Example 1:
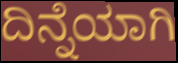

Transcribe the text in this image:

ದಿನ್ನೆಯಾಗಿ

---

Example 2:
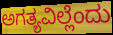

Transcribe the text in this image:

ಅಗತ್ಯವಿಲ್ಲೆಂದು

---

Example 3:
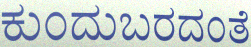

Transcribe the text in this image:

ಕುಂದುಬರದಂತೆ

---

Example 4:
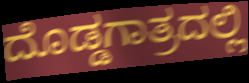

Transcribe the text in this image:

ದೊಡ್ಡಗಾತ್ರದಲ್ಲಿ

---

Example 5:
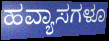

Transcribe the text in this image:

ಹವ್ಯಾಸಗಳೂ